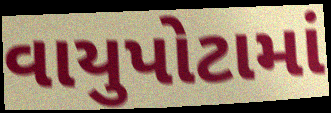
વાયુપોટામાં